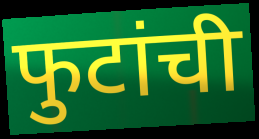
फुटांची